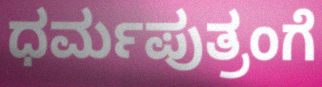
ಧರ್ಮಪುತ್ರಂಗೆ